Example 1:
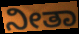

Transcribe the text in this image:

ನೀತಾ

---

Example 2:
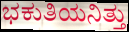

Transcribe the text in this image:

ಭಕುತಿಯನಿತ್ತು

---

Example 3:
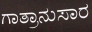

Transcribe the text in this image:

ಗಾತ್ರಾನುಸಾರ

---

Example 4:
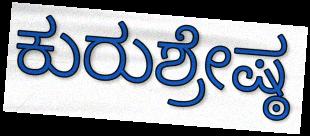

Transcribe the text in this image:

ಕುರುಶ್ರೇಷ್ಠ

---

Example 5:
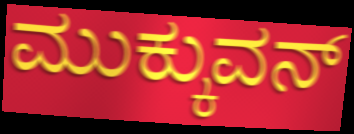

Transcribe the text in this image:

ಮುಕ್ಕುವನ್